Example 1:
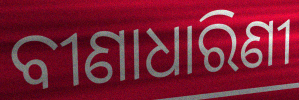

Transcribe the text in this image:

ବୀଣାଧାରିଣୀ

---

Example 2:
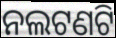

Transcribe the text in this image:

ନଲଟଣଟି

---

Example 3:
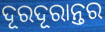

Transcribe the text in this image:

ଦୂରଦୂରାନ୍ତର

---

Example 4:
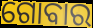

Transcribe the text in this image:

ଗୋବାର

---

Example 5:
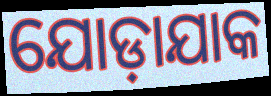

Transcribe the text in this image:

ଯୋଡ଼ାଯାକ